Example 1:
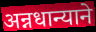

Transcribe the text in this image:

अन्नधान्याने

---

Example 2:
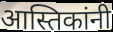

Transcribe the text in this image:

आस्तिकांनी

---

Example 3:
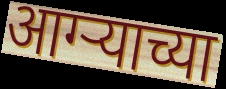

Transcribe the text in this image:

आग्ऱ्याच्या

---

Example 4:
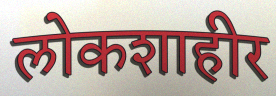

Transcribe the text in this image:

लोकशाहीर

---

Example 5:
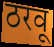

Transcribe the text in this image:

ठरवू